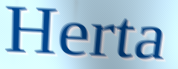
Herta